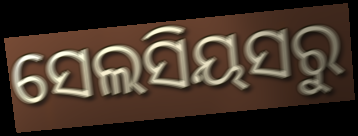
ସେଲସିୟସରୁ